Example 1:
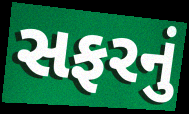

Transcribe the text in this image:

સફરનું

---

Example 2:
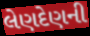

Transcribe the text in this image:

લેણદેણની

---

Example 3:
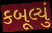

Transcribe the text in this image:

કબૂલ્યું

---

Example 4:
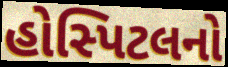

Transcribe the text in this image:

હોસ્પિટલનો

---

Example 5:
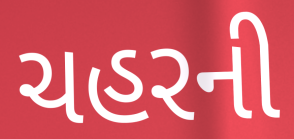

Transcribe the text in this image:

ચહરની